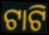
ଟାଟି